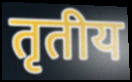
तृतीय